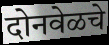
दोनवेळचे